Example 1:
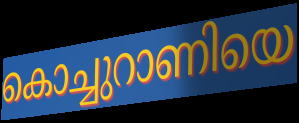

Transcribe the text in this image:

കൊച്ചുറാണിയെ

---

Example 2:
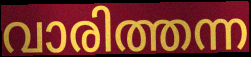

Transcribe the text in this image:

വാരിത്തന്ന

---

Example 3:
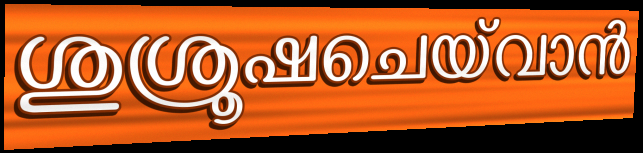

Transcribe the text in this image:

ശുശ്രൂഷചെയ്‌വാൻ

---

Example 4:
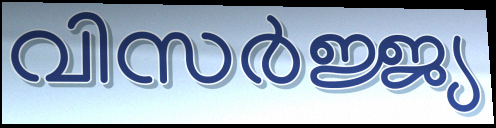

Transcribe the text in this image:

വിസർജ്ജ്യ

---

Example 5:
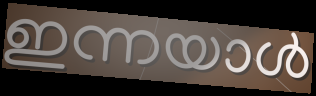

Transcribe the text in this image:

ഇന്നയാൾ